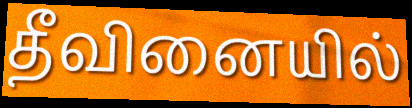
தீவினையில்